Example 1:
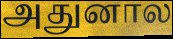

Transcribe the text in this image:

அதுனால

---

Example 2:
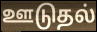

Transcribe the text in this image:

ஊடுதல்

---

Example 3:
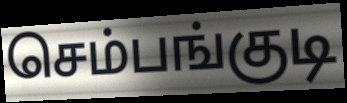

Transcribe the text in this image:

செம்பங்குடி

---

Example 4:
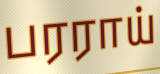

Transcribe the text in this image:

பரராய்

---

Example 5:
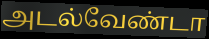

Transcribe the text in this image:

அடல்வேண்டா